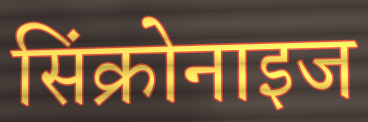
सिंक्रोनाइज